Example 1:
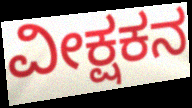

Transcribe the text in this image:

ವೀಕ್ಷಕನ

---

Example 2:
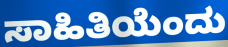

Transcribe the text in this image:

ಸಾಹಿತಿಯೆಂದು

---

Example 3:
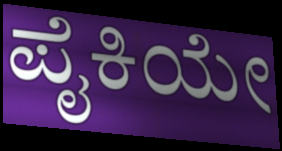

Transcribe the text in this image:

ಪೈಕಿಯೇ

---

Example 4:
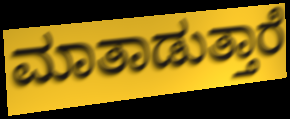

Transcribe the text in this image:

ಮಾತಾಡುತ್ತಾರೆ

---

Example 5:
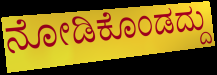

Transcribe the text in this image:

ನೋಡಿಕೊಂಡದ್ದು